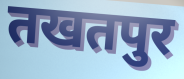
तखतपुर